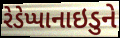
રેડેપ્પાનાઇડુને